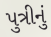
પુત્રીનું